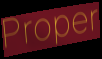
Proper